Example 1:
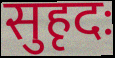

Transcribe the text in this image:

सुहृदः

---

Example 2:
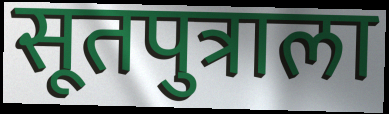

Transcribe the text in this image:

सूतपुत्राला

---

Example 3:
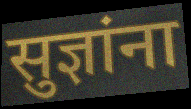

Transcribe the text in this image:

सुज्ञांना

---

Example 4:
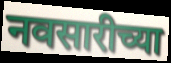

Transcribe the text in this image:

नवसारीच्या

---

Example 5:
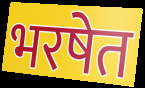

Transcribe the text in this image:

भरषेत